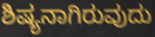
ಶಿಷ್ಯನಾಗಿರುವುದು